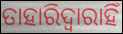
ତାହାରିଦ୍ୱାରାହିଁ